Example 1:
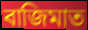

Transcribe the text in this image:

বাজিমাত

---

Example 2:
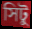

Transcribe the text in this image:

সিটু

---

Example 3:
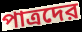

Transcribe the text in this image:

পাত্রদের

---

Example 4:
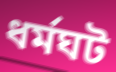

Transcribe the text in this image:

ধর্মঘট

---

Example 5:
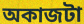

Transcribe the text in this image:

অকাজটা